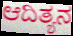
ಆದಿತ್ಯನ